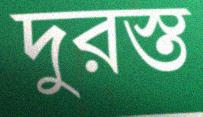
দুরস্ত